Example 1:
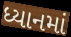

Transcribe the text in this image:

ધ્યાનમાં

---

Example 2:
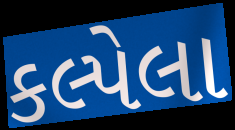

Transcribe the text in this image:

કલ્પેલા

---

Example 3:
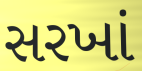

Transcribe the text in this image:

સરખાં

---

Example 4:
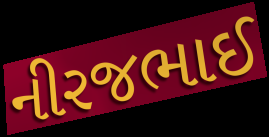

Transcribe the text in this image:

નીરજભાઈ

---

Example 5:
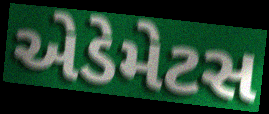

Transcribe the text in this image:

એડેમેટસ